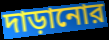
দাড়ানোর